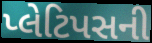
પ્લેટિપસની